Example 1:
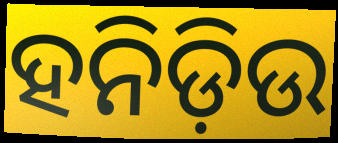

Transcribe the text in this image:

ହନିଡ଼ିଉ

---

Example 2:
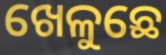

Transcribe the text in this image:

ଖେଳୁଛେ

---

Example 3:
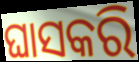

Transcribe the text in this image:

ଘାସକରି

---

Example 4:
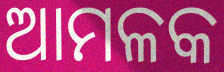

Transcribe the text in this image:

ଆମଳକ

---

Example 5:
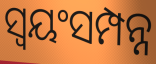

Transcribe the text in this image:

ସ୍ବୟଂସମ୍ପନ୍ନ